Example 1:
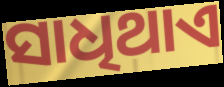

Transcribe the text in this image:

ସାଧିଥାଏ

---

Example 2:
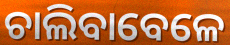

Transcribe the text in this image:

ଚାଲିବାବେଳେ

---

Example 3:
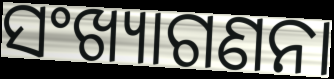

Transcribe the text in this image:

ସଂଖ୍ୟାଗଣନା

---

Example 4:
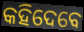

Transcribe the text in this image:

କହିଦେବେ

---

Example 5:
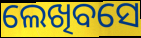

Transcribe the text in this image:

ଲେଖିବସେ